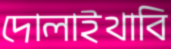
দোলাইথাবি